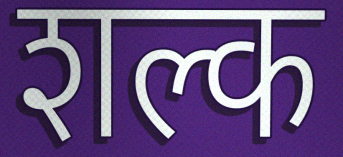
शल्क